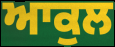
ਆਕੁਲ